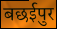
बछईपुर